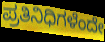
ಪ್ರತಿನಿಧಿಗಳೆಂದೇ